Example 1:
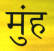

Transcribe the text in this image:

मुंह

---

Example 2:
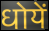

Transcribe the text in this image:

धोयें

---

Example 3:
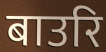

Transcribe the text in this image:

बाउरि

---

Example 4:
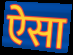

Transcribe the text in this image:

ऐेसा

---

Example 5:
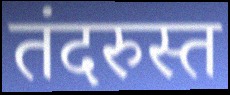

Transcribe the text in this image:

तंदरुस्त